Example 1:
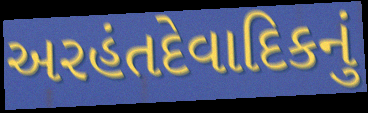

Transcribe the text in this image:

અરહંતદેવાદિકનું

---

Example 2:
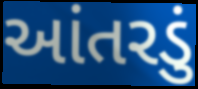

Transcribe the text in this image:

આંતરડું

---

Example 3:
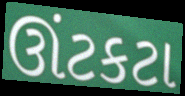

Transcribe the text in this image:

ઊંટકટા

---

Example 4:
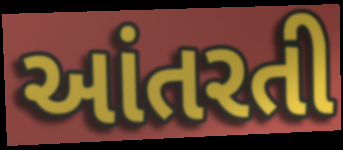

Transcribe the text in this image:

આંતરતી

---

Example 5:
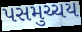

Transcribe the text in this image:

પસમુચ્ચય